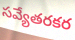
సవ్యేతరకర